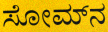
ಸೋಮ್‍ನ